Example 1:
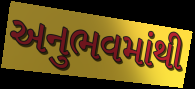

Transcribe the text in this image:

અનુભવમાંથી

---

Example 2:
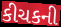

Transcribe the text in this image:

કીચકની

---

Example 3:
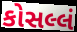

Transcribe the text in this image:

કોસલ્લં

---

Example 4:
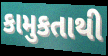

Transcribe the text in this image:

કામુકતાથી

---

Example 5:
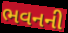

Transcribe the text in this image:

ભવનની